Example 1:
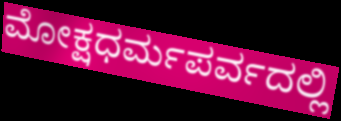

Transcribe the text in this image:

ಮೋಕ್ಷಧರ್ಮಪರ್ವದಲ್ಲಿ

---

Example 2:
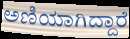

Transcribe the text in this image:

ಅಣಿಯಾಗಿದ್ದಾರೆ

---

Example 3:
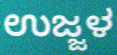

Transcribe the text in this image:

ಉಜ್ಜಳ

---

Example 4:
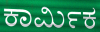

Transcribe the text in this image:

ಕಾರ್ಮಿಕ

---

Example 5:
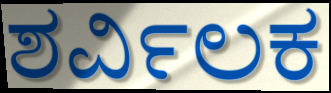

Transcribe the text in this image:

ಶರ್ವಿಲಕ